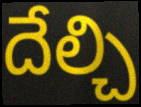
దేల్చి